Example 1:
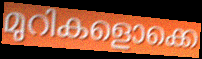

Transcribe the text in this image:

മുറികളൊക്കെ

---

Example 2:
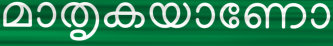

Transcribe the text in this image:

മാതൃകയാണോ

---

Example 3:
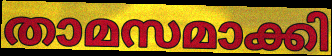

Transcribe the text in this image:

താമസമാക്കി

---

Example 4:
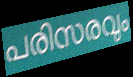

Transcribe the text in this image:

പരിസരവും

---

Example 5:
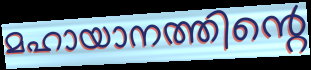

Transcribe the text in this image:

മഹായാനത്തിന്റെ